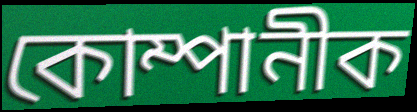
কোম্পানীক